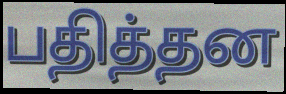
பதித்தன